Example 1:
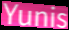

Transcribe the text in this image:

Yunis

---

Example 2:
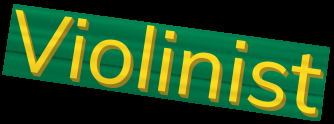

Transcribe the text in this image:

Violinist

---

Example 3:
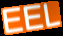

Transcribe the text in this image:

EEL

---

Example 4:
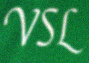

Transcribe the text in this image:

VSL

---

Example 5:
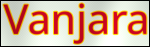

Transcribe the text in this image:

Vanjara